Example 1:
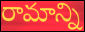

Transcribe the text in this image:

రామాన్ని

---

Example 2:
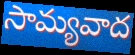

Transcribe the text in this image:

సామ్యవాద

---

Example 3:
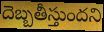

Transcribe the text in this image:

దెబ్బతీస్తుందని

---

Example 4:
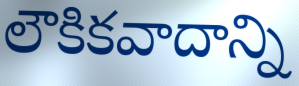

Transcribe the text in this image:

లౌకికవాదాన్ని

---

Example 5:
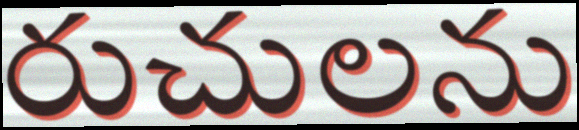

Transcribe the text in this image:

రుచులను